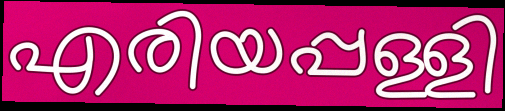
എരിയപ്പള്ളി